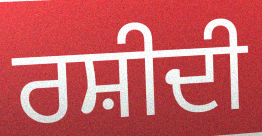
ਰਸ਼ੀਦੀ